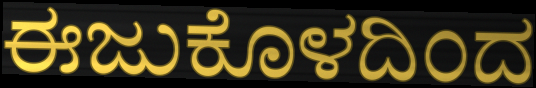
ಈಜುಕೊಳದಿಂದ